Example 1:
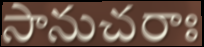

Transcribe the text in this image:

సానుచరాః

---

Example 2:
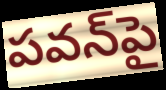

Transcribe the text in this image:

పవన్‌పై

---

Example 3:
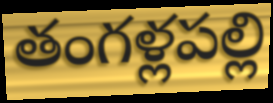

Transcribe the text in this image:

తంగళ్లపల్లి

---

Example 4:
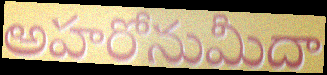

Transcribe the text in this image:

అహరోనుమీదా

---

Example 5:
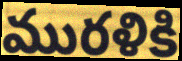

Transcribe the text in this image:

మురళికి